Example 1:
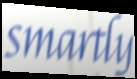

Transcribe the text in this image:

smartly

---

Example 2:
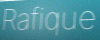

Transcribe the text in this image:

Rafique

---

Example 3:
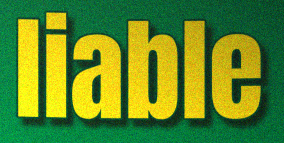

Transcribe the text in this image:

liable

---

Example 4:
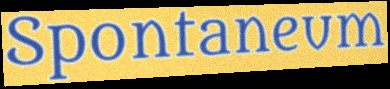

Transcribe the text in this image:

Spontaneum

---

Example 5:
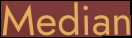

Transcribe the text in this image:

Median